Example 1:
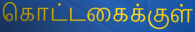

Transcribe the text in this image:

கொட்டகைக்குள்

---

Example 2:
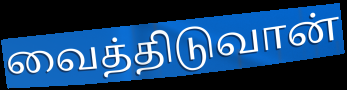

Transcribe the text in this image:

வைத்திடுவான்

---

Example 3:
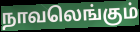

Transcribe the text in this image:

நாவலெங்கும்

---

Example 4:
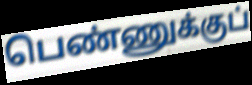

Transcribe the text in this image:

பெண்ணுக்குப்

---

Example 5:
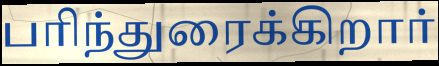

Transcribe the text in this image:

பரிந்துரைக்கிறார்